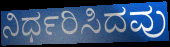
ನಿರ್ಧರಿಸಿದವು